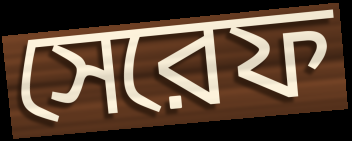
সেরেফ